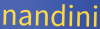
nandini